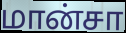
மான்சா